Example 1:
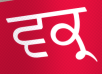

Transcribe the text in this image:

ਵਕ੍ਰ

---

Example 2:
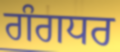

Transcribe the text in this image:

ਗੰਗਧਰ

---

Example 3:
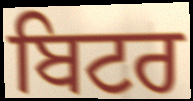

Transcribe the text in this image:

ਬਿਟਰ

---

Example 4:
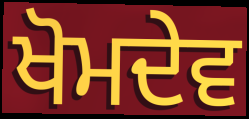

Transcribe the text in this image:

ਖੋਮਦੇਵ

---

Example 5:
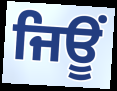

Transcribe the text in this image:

ਜਿਊਂ